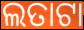
ଲତାଟା